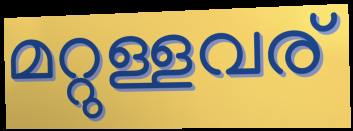
മറ്റുള്ളവര്